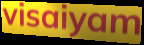
visaiyam